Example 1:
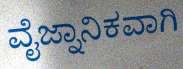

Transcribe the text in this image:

ವೈಜ್ನಾನಿಕವಾಗಿ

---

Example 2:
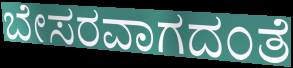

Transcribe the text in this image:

ಬೇಸರವಾಗದಂತೆ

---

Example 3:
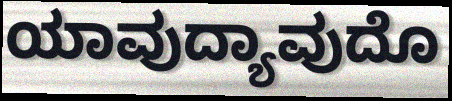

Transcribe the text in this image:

ಯಾವುದ್ಯಾವುದೊ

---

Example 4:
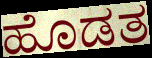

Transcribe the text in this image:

ಹೊಡತ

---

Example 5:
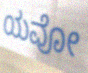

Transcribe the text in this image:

ಯವೋ